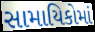
સામાયિકોમાં